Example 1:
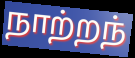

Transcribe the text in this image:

நாற்றந்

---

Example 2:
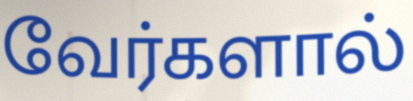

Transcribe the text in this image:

வேர்களால்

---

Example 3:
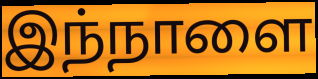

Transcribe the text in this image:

இந்நாளை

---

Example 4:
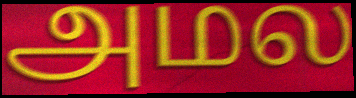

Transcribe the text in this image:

அமல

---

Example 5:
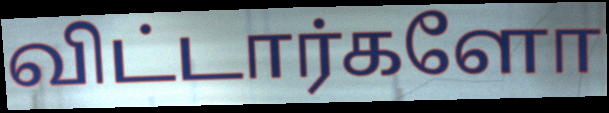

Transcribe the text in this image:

விட்டார்களோ